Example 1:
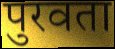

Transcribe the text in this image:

पुरवता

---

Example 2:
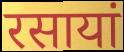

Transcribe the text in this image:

रसायां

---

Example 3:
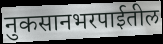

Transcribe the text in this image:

नुकसानभरपाईतील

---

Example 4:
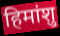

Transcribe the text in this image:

हिमांशु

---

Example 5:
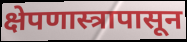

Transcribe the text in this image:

क्षेपणास्त्रापासून